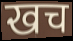
खच